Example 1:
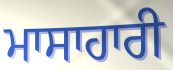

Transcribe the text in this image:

ਮਾਸਾਹਾਰੀ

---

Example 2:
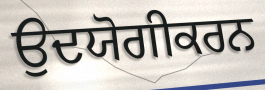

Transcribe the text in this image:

ਉਦਯੋਗੀਕਰਨ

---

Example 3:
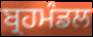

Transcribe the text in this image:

ਬ੍ਰਹਮੰਡਲ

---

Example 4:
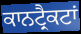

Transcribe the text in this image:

ਕਾਨਟ੍ਰੈਕਟਾਂ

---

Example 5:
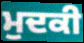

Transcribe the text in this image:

ਮੁਦਕੀ